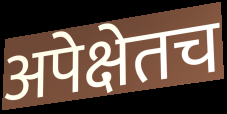
अपेक्षेतच